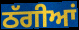
ਠੱਗੀਆਂ